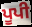
ਪੂਪੀ